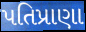
પતિપ્રાણા